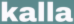
kalla